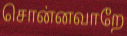
சொன்னவாறே